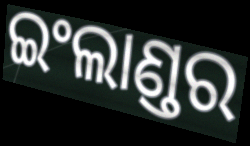
ଇଂଲାଣ୍ଡର